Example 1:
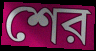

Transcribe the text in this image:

শের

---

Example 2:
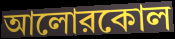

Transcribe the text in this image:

আলোরকোল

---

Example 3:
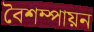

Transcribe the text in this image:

বৈশম্পায়ন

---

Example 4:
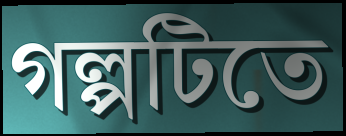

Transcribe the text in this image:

গল্পটিতে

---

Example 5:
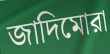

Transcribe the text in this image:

জাদিমোরা